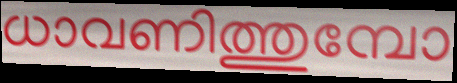
ധാവണിത്തുമ്പോ